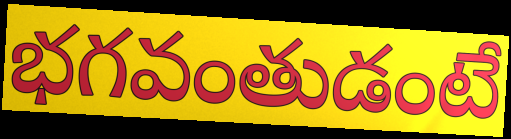
భగవంతుడంటే